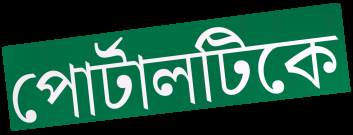
পোর্টালটিকে